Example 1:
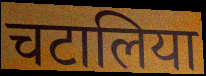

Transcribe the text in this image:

चटालिया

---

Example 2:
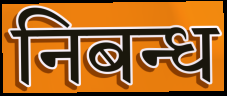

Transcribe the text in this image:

निबन्‍ध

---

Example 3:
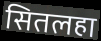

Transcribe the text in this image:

सितलहा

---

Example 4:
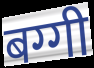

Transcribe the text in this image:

बग्‍गी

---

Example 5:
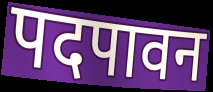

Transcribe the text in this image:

पदपावन